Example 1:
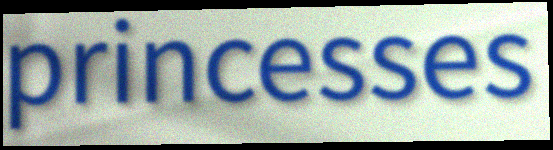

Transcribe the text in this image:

princesses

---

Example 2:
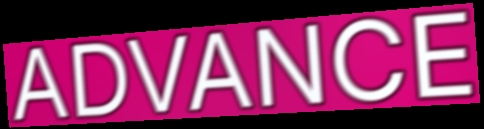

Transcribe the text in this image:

ADVANCE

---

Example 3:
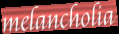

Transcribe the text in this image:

melancholia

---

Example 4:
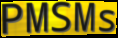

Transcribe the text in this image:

PMSMs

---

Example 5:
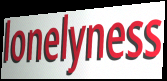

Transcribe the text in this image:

lonelyness